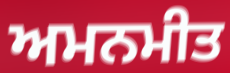
ਅਮਨਮੀਤ